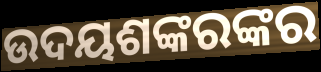
ଉଦୟଶଙ୍କରଙ୍କର